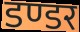
डण्डर